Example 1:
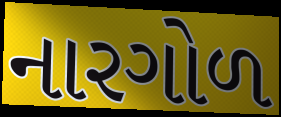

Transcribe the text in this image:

નારગોળ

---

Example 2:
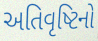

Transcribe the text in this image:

અતિવૃષ્ટિનો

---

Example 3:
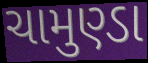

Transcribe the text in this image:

ચામુણ્ડા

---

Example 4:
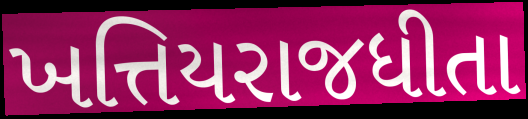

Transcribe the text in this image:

ખત્તિયરાજધીતા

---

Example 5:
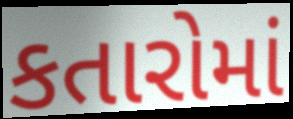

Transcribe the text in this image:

કતારોમાં